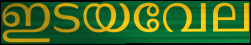
ഇടയവേല